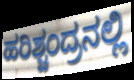
ಹರಿಶ್ಚಂದ್ರನಲ್ಲಿ